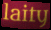
laity